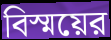
বিস্ময়ের